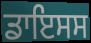
ਡਾਇਸਸ